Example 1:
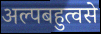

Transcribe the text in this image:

अल्पबहुत्वसे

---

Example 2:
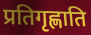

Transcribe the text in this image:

प्रतिगृह्णाति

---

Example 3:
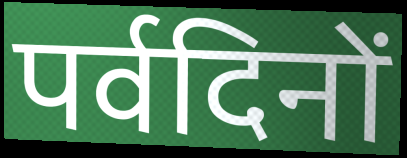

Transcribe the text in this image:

पर्वदिनों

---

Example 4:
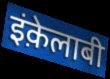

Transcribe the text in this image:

इंक़ेलाबी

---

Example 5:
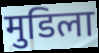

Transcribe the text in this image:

मुडिला